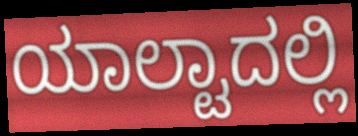
ಯಾಲ್ಟಾದಲ್ಲಿ